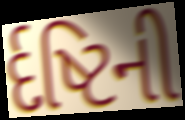
ર્દષ્ટિની